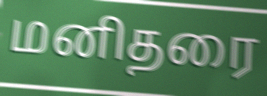
மனிதரை